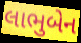
લાભુબેન